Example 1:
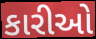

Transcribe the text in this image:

કારીઓ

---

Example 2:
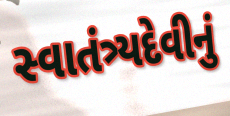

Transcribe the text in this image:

સ્વાતંત્ર્યદેવીનું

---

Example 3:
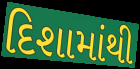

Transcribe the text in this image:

દિશામાંથી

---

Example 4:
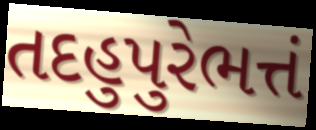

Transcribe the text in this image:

તદહુપુરેભત્તં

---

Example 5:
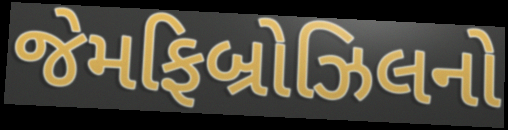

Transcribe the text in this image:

જેમફિબ્રોઝિલનો